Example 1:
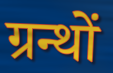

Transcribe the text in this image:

ग्रन्थों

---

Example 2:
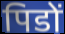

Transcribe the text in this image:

पिडों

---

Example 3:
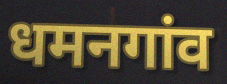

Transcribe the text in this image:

धमनगांव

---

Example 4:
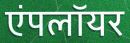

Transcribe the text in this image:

एंपलॉयर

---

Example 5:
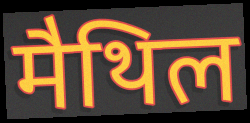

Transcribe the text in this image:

मैथिल